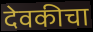
देवकीचा